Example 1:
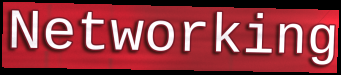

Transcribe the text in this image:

Networking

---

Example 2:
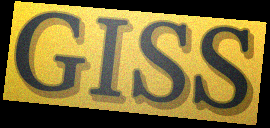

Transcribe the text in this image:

GISS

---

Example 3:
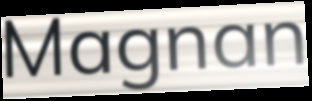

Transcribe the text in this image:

Magnan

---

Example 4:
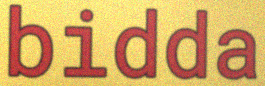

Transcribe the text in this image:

bidda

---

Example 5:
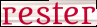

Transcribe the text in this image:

rester